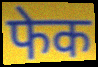
फेक